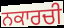
ਨਕਾਰਚੀ